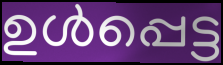
ഉൾപ്പെട്ട